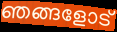
ഞങ്ങളോട്